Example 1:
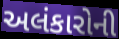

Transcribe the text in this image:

અલંકારોની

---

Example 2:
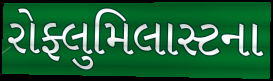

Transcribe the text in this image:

રોફ્લુમિલાસ્ટના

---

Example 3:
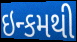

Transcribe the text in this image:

ઇન્કમથી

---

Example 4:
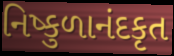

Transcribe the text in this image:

નિષ્કુળાનંદકૃત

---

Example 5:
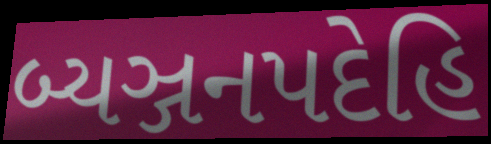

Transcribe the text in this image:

બ્યઞ્જનપદેહિ